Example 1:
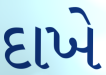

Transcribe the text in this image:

દાખે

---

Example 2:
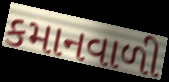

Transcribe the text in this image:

કમાનવાળી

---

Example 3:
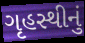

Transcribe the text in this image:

ગૃહસ્થીનું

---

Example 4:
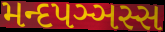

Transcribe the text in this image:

મન્દપઞ્ઞસ્સ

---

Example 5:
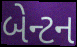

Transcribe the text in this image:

બેન્ટન